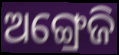
ଅଙ୍ଗ୍ରେଜି